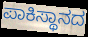
ಪಾಕಿಸ್ಥಾನದ